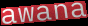
awana